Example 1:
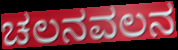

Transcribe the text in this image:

ಚಲನವಲನ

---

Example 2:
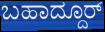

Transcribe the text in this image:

ಬಹಾದ್ದೂರ್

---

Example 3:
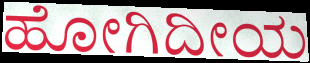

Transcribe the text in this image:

ಹೋಗಿದೀಯ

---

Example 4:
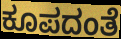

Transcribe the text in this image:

ಕೂಪದಂತೆ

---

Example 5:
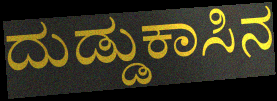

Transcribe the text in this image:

ದುಡ್ಡುಕಾಸಿನ